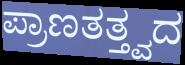
ಪ್ರಾಣತತ್ತ್ವದ